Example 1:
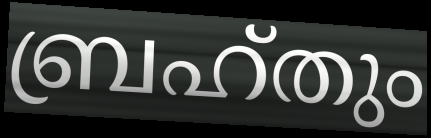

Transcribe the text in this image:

ബ്രഹ്തും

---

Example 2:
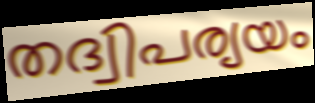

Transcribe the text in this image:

തദ്വിപര്യയം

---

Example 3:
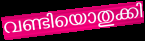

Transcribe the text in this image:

വണ്ടിയൊതുക്കി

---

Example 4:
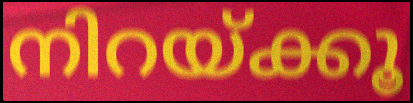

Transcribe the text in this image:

നിറയ്ക്കൂ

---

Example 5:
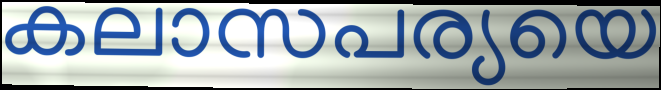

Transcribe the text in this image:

കലാസപര്യയെ